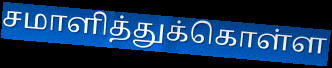
சமாளித்துக்கொள்ள